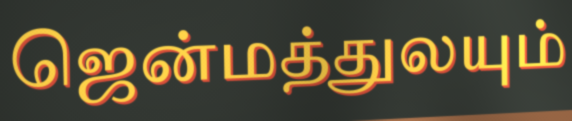
ஜென்மத்துலயும்